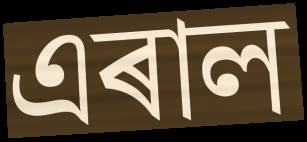
এৰাল